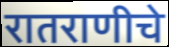
रातराणीचे